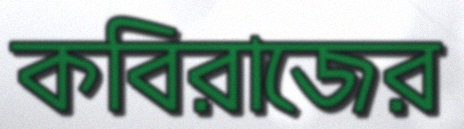
কবিরাজের